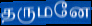
தருமனே